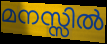
മനസ്സിൽ